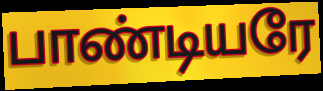
பாண்டியரே